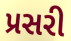
પ્રસરી